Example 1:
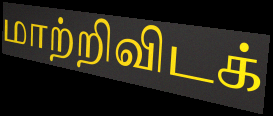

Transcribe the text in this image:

மாற்றிவிடக்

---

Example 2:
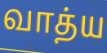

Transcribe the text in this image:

வாத்ய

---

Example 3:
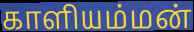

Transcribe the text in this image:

காளியம்மன்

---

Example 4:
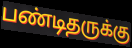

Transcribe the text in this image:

பண்டிதருக்கு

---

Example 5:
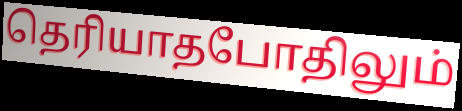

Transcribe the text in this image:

தெரியாதபோதிலும்